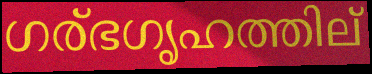
ഗര്ഭഗൃഹത്തില്